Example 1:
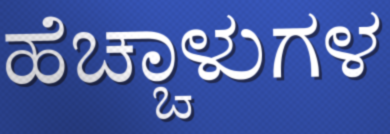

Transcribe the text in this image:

ಹೆಚ್ಚಾಳುಗಳ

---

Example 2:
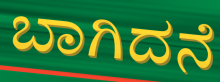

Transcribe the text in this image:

ಬಾಗಿದನೆ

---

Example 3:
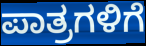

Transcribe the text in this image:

ಪಾತ್ರಗಳಿಗೆ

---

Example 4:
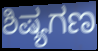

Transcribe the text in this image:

ಶಿಷ್ಯಗಣ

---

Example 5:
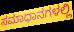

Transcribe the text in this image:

ಸಮಾಧಾನಗಳಲ್ಲಿ